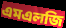
এমএলজি